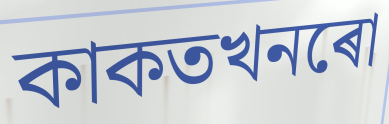
কাকতখনৰো